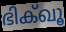
ഭിക്ഖൂ